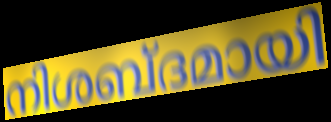
നിശബ്ദമായി